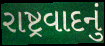
રાષ્ટ્રવાદનું